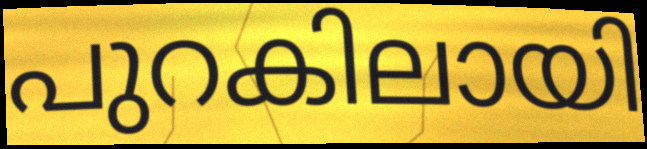
പുറകിലായി